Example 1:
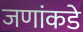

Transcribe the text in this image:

जणांकडे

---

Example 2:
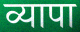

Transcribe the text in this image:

व्यापा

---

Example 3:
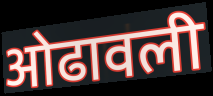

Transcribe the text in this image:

ओढावली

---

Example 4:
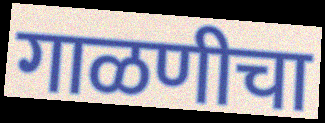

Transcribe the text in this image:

गाळणीचा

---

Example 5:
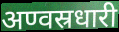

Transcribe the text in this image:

अण्वस्रधारी